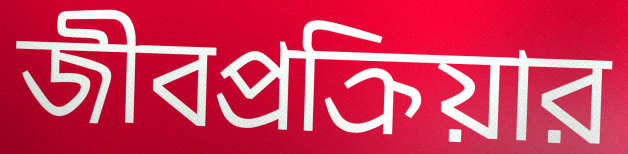
জীবপ্রক্রিয়ার